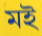
মই